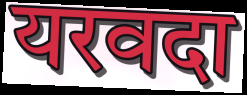
यरवदा